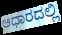
ಆಧಾರದಲ್ಲಿ